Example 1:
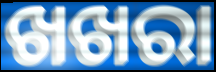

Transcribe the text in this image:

ଖଖରା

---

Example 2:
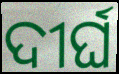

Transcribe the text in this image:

ଦୀର୍ଘ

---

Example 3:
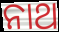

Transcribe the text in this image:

ନାଥ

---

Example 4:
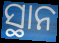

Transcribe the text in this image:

ସ୍ଥାନ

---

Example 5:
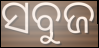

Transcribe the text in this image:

ସବୁଜ